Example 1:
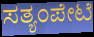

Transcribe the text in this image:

ಸತ್ಯಂಪೇಟೆ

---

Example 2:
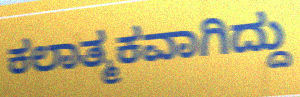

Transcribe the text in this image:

ಕಲಾತ್ಮಕವಾಗಿದ್ದು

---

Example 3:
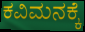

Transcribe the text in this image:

ಕವಿಮನಕ್ಕೆ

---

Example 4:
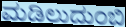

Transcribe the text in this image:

ಮಡಿಲುದುಂಬಿ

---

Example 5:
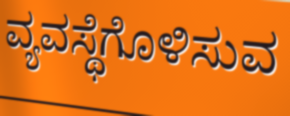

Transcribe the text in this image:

ವ್ಯವಸ್ಥೆಗೊಳಿಸುವ